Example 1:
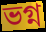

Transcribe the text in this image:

ভগ্ন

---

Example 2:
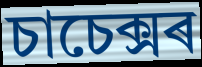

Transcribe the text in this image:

চাচেক্সৰ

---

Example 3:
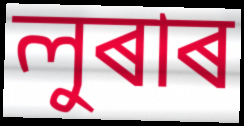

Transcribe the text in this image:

লুৰাৰ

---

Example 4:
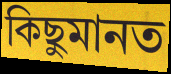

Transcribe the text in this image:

কিছুমানত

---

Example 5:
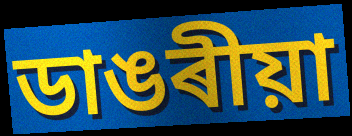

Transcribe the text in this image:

ডাঙৰীয়া